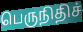
பெருநிதிச்